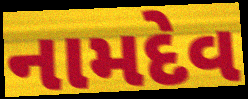
નામદેવ